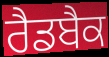
ਰੈਡਬੈਕ